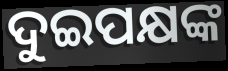
ଦୁଇପକ୍ଷଙ୍କ